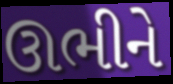
ઊભીને